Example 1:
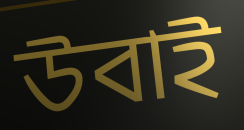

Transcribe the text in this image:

উবাই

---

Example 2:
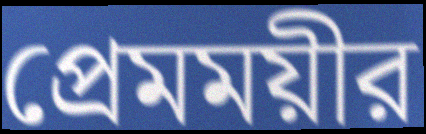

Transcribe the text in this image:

প্রেমময়ীর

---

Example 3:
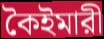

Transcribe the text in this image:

কৈইমারী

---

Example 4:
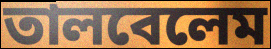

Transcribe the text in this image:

তালবেলেম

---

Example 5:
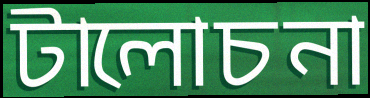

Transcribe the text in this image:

টালোচনা